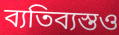
ব্যতিব্যস্তও